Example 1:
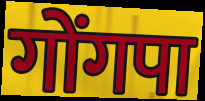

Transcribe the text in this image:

गोंगपा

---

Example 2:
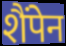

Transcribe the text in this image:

शैंपेन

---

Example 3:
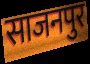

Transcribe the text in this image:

साजनपुर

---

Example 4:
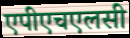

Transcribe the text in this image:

एपीएचएलसी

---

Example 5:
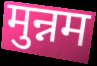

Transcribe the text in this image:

मुन्नम